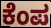
ಕೆಂಪ